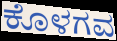
ಕೊಳಗವ